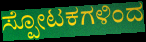
ಸ್ಪೋಟಕಗಳಿಂದ